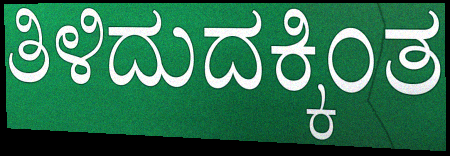
ತಿಳಿದುದಕ್ಕಿಂತ